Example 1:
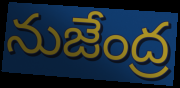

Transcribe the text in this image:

నుజేంద్ర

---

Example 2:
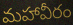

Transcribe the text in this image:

మహావీరం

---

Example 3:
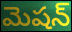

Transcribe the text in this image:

మెషన్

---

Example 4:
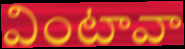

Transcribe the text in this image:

వింటావా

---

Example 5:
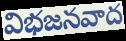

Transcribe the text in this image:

విభజనవాద